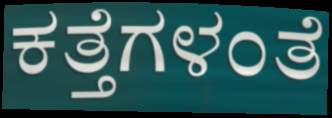
ಕತ್ತೆಗಳಂತೆ